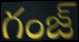
గంజ్